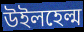
উইলহেল্ম